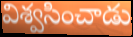
విశ్వసించాడు